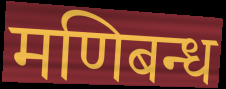
मणिबन्ध